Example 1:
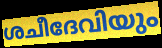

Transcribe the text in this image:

ശചീദേവിയും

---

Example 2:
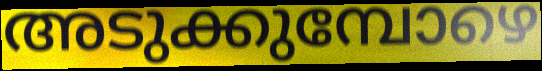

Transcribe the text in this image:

അടുക്കുമ്പോഴെ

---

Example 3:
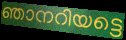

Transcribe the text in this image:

ഞാനറിയട്ടെ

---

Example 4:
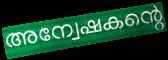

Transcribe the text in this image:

അന്വേഷകന്റെ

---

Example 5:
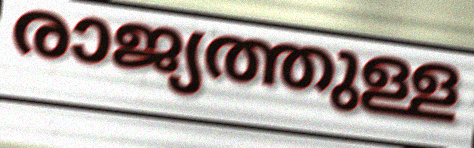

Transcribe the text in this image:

രാജ്യത്തുള്ള